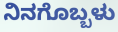
ನಿನಗೊಬ್ಬಳು